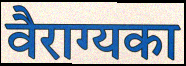
वैराग्यका